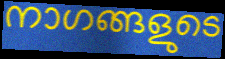
നാഗങ്ങളുടെ